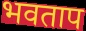
भवताप